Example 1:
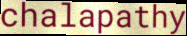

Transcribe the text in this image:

chalapathy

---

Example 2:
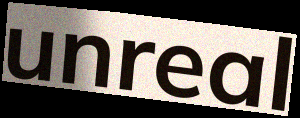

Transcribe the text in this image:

unreal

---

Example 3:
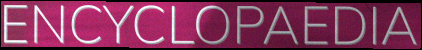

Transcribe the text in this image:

ENCYCLOPAEDIA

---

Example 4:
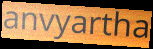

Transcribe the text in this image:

anvyartha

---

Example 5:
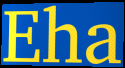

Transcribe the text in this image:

Eha